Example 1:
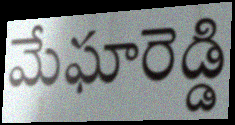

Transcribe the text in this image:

మేఘారెడ్డి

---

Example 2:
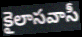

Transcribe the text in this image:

కైలాసవాసీ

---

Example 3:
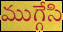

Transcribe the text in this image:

ముగ్గేసి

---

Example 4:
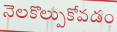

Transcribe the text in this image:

నెలకొల్పుకోవడం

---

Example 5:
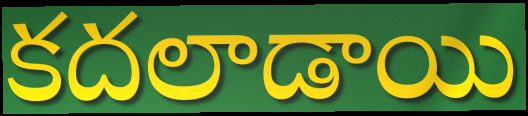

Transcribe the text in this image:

కదలాడాయి